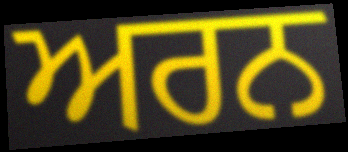
ਅਰਨ